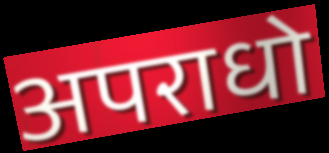
अपराधो